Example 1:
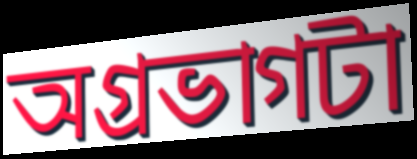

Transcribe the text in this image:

অগ্রভাগটা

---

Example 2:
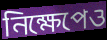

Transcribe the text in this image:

নিক্ষেপেও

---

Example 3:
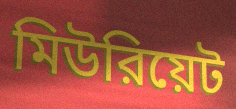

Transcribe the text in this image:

মিউরিয়েট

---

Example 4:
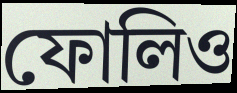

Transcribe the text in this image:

ফোলিও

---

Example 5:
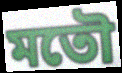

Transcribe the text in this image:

মতৌ